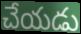
చేయడు